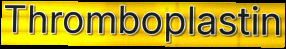
Thromboplastin